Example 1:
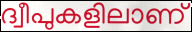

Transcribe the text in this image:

ദ്വീപുകളിലാണ്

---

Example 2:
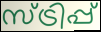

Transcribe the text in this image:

സ്ട്രിപ്പ്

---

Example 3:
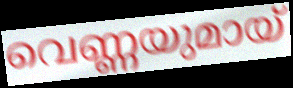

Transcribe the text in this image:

വെണ്ണയുമായ്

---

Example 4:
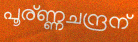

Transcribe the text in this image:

പൂര്ണ്ണചന്ദ്രന്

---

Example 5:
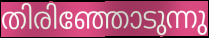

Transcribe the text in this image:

തിരിഞ്ഞോടുന്നു